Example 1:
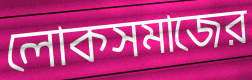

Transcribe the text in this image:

লোকসমাজের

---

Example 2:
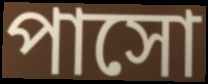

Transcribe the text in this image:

পাসো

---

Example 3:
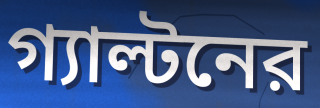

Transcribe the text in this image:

গ্যাল্টনের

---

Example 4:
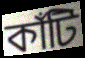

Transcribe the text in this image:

কাঁটি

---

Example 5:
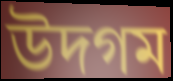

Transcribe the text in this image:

উদগম